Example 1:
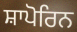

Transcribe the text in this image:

ਸ਼ਾਪੋਰਿਨ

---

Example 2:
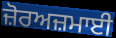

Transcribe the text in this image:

ਜ਼ੋਰਅਜ਼ਮਾਈ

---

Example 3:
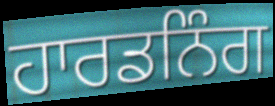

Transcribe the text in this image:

ਹਾਰਡਨਿੰਗ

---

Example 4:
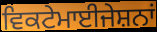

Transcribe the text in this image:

ਵਿਕਟੇਮਾਈਜੇਸ਼ਨਾਂ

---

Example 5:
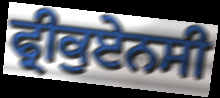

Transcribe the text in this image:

ਫ੍ਰੀਕੁਏਨਸੀ